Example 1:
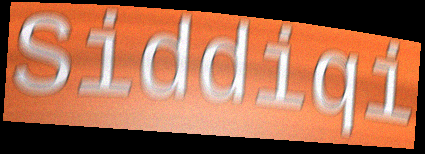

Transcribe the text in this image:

Siddiqi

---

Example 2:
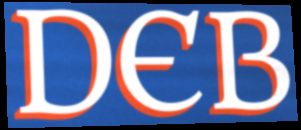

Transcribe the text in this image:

DEB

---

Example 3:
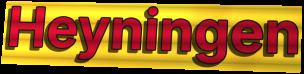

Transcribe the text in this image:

Heyningen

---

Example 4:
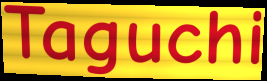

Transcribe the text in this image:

Taguchi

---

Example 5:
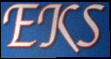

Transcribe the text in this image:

EKS